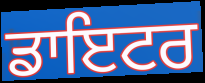
ਡਾਇਟਰ